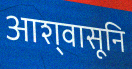
आश्वासूनि